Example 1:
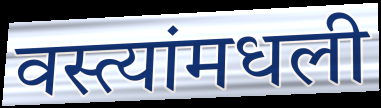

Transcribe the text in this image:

वस्त्यांमधली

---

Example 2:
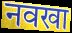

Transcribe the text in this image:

नवखा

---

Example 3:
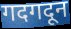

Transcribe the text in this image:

गदगदून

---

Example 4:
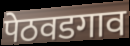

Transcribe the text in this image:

पेठवडगाव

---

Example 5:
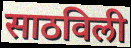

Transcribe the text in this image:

साठविली